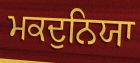
ਮਕਦੁਨਿਯਾ